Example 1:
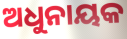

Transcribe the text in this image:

ଅଧୁନାୟକ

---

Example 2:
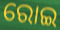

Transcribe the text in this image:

ରୋଇ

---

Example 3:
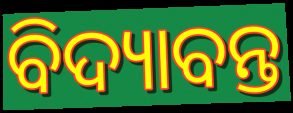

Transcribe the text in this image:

ବିଦ୍ୟାବନ୍ତ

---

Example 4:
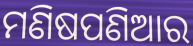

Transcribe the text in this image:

ମଣିଷପଣିଆର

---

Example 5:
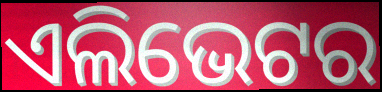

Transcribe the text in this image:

ଏଲିଭେଟର